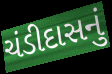
ચંડીદાસનું